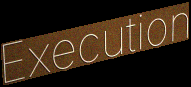
Execution